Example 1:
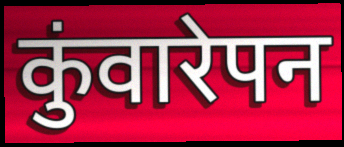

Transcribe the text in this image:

कुंवारेपन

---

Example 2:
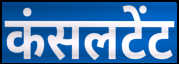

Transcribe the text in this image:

कंसलटेंट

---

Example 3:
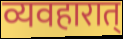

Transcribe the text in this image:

व्यवहारात्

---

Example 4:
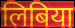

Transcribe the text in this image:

लिबिया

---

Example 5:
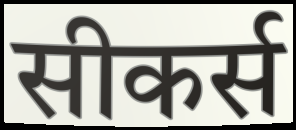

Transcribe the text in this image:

सीकर्स